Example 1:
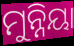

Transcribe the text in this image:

ମୁନ୍ନିୟା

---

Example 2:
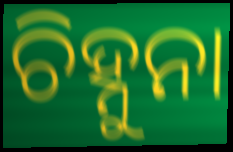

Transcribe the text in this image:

ଚିହ୍ନୁନା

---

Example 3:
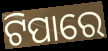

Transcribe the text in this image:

ଟିପାରେ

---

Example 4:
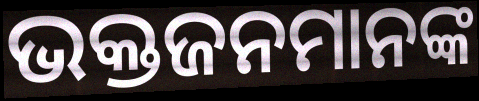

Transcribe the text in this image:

ଭକ୍ତଜନମାନଙ୍କ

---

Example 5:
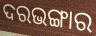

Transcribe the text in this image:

ଦରଭଙ୍ଗାର